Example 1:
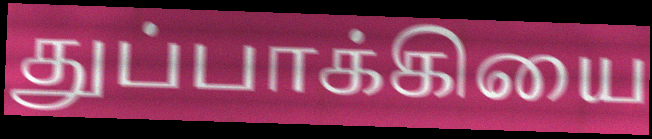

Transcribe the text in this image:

துப்பாக்கியை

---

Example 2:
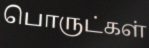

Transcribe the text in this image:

பொருட்கள்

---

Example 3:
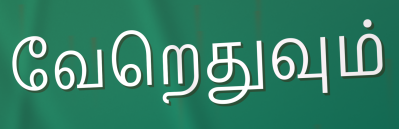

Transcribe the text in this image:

வேறெதுவும்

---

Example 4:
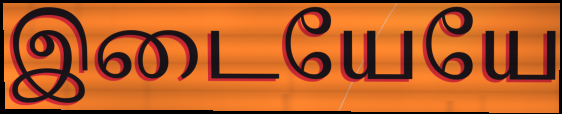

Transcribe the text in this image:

இடையேயே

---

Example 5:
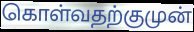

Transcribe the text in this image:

கொள்வதற்குமுன்